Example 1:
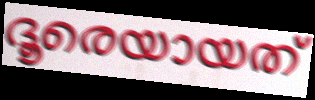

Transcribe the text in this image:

ദൂരെയായത്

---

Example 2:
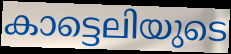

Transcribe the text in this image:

കാട്ടെലിയുടെ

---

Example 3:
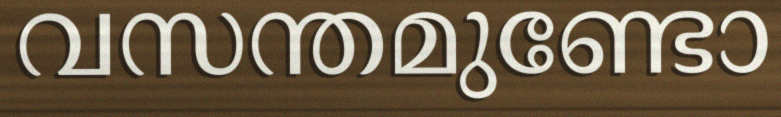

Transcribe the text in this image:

വസന്തമുണ്ടോ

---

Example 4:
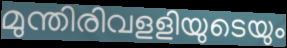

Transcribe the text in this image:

മുന്തിരിവളളിയുടെയും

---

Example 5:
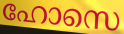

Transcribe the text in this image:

ഹോസെ